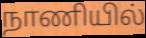
நாணியில்